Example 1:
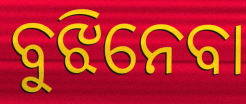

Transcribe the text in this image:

ବୁଝିନେବା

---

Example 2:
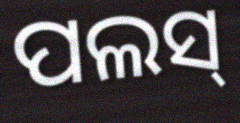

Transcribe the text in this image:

ପଲସ୍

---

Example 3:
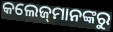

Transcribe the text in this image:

କଲେଜ୍‌ମାନଙ୍କରୁ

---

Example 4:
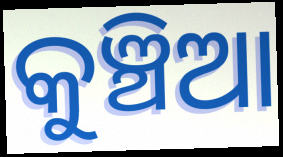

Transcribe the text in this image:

କୁଞ୍ଚିଆ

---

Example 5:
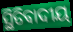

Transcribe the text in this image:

ସ୍ଥିତିବାଦୀୟ